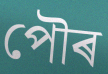
পৌৰ